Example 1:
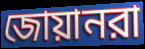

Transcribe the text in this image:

জোয়ানরা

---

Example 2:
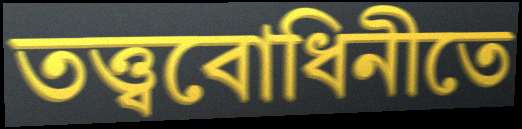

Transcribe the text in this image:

তত্ত্ববোধিনীতে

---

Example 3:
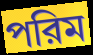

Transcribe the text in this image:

পরিম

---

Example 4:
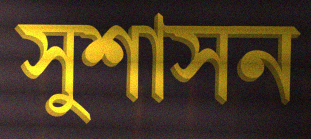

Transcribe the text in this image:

সুশাসন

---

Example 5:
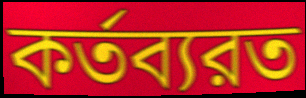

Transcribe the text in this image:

কর্তব্যরত